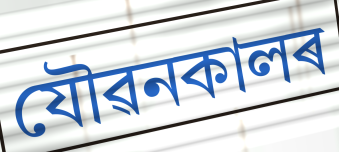
যৌৱনকালৰ